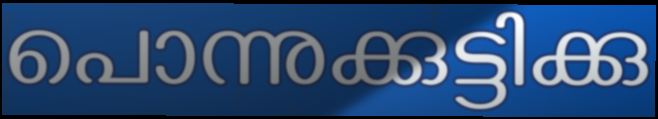
പൊന്നുക്കുട്ടിക്കു